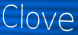
Clove